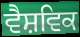
ਵੈਸ਼ਵਿਕ